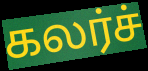
கலர்ச்